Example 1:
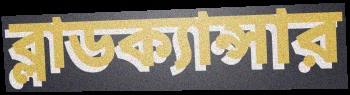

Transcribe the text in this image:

ব্লাডক্যান্সার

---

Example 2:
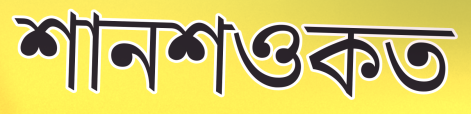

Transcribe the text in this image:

শানশওকত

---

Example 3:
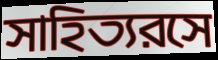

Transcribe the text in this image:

সাহিত্যরসে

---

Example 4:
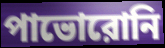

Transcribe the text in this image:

পাভোরোনি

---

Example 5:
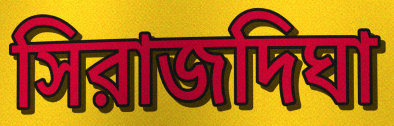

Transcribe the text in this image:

সিরাজদিঘা